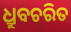
ଧ୍ରୁବଚରିତ